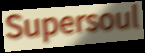
Supersoul